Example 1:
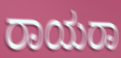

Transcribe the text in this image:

ರಾಯರಾ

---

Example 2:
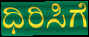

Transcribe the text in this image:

ಧಿರಿಸಿಗೆ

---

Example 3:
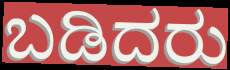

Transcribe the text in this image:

ಬಡಿದರು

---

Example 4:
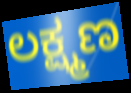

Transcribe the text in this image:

ಲಕ್ಷ್ಮಣ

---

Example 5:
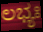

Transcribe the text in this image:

ಲಭ್ಯಃ